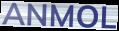
ANMOL